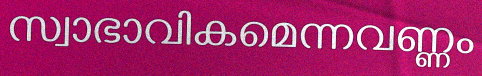
സ്വാഭാവികമെന്നവണ്ണം